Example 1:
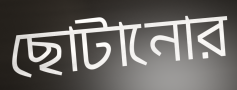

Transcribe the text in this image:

ছোটানোর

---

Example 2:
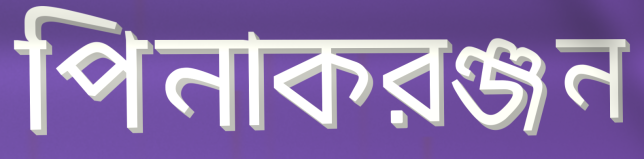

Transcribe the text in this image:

পিনাকরঞ্জন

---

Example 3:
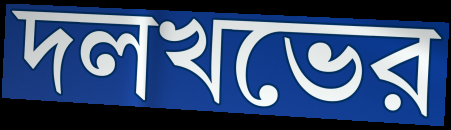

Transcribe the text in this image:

দলখভের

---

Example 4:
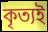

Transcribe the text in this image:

কৃত্যই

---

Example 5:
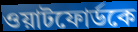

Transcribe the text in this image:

ওয়াটফোর্ডকে